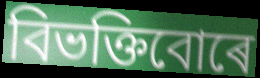
বিভক্তিবোৰে